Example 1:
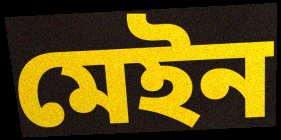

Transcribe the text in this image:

মেইন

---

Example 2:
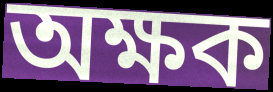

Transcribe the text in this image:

অক্ষক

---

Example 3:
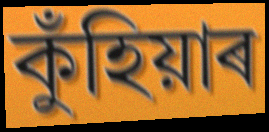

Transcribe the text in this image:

কুঁহিয়াৰ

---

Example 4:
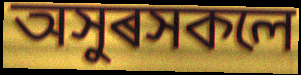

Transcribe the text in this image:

অসুৰসকলে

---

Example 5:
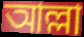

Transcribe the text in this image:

আল্লা